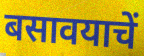
बसावयाचें